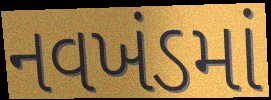
નવખંડમાં